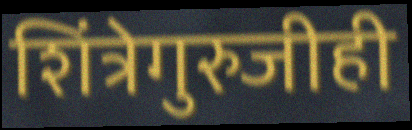
शिंत्रेगुरुजीही